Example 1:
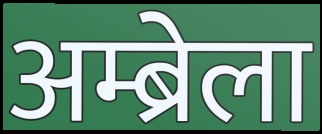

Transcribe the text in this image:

अम्‍ब्रेला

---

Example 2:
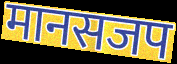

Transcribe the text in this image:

मानसजप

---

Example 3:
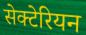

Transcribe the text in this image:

सेक्टेरियन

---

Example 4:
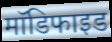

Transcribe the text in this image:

मॉडिफाइड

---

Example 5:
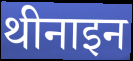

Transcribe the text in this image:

थीनाइन